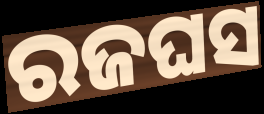
ରଜଘସ